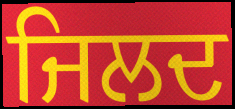
ਜਿਲਦ